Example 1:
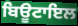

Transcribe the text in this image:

ਬਿਊਟਾਇਲ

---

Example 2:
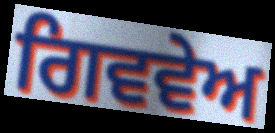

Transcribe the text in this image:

ਗਿਵਵੇਅ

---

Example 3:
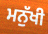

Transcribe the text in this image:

ਮਨੁੱਖੀ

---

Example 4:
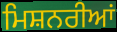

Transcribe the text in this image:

ਮਿਸ਼ਨਰੀਆਂ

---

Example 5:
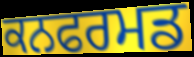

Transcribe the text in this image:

ਕਨਫਰਮਡ